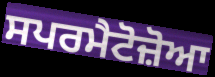
ਸਪਰਮੈਟੋਜ਼ੋਆ